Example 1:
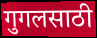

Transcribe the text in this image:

गुगलसाठी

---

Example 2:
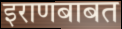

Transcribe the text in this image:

इराणबाबत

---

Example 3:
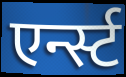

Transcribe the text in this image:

एर्न्स्ट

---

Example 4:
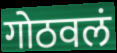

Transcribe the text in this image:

गोठवलं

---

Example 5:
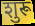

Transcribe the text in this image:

शुरू